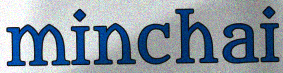
minchai